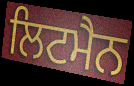
ਲਿਟਮੈਨ